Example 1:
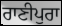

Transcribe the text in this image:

ਰਾਣੀਪੁਰਾ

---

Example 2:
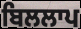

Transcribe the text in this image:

ਬਿਲਲਾਪ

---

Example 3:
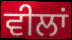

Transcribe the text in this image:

ਵੀਲਾਂ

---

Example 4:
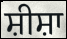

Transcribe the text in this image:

ਸ਼ੀਸ਼ਾ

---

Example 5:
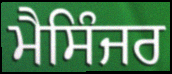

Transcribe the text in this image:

ਮੈਸਿੰਜਰ